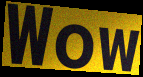
Wow